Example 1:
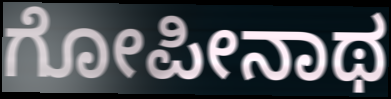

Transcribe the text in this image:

ಗೋಪೀನಾಥ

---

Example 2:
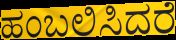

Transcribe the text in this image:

ಹಂಬಲಿಸಿದರೆ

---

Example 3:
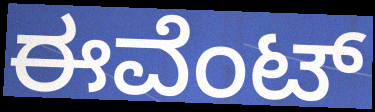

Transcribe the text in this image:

ಈವೆಂಟ್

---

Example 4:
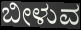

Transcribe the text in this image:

ಬೀಳುವ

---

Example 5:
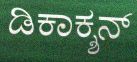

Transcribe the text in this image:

ಡಿಕಾಕ್ಶನ್